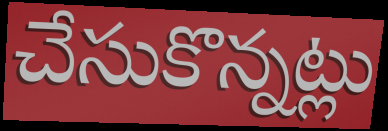
చేసుకొన్నట్లు